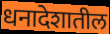
धनादेशातील